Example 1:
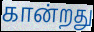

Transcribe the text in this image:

கான்றது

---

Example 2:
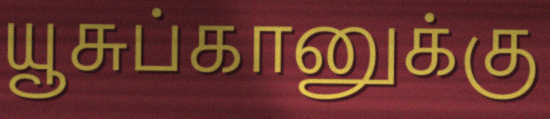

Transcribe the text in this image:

யூசுப்கானுக்கு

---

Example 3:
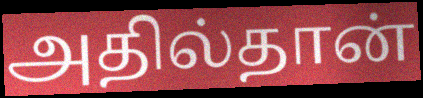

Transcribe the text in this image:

அதில்தான்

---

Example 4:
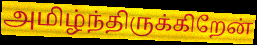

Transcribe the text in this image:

அமிழ்ந்திருக்கிறேன்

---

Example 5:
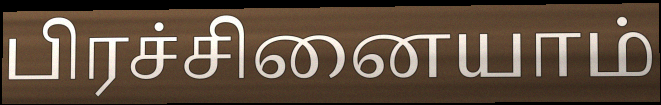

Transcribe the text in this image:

பிரச்சினையாம்